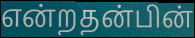
என்றதன்பின்